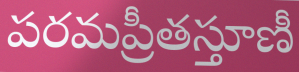
పరమప్రీతస్తూణీ